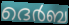
ദെർബ